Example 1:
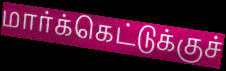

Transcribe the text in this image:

மார்க்கெட்டுக்குச்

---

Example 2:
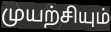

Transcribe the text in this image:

முயற்சியும்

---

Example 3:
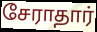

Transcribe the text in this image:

சேராதார்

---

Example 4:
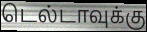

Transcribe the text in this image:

டெல்டாவுக்கு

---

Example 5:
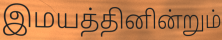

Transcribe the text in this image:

இமயத்தினின்றும்